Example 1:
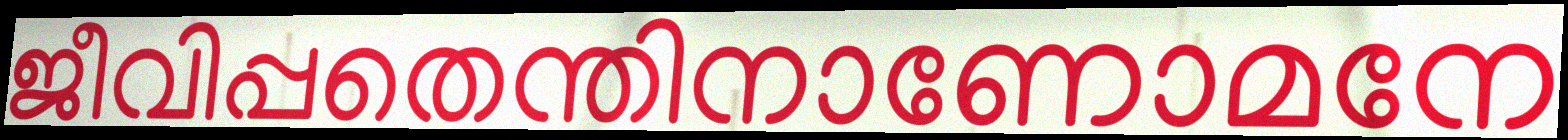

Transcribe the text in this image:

ജീവിപ്പതെന്തിനാണോമനേ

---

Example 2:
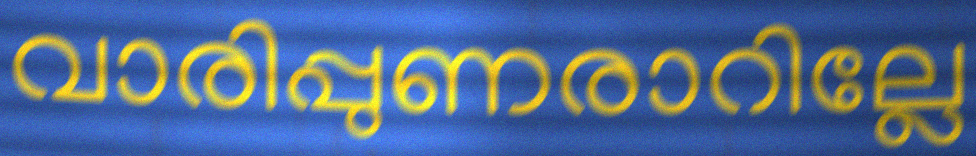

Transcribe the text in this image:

വാരിപ്പുണരാറില്ലേ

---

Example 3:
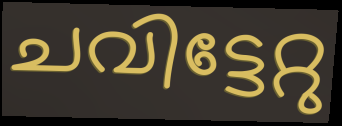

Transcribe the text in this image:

ചവിട്ടേറ്റു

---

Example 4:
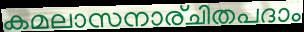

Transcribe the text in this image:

കമലാസനാര്ചിതപദാം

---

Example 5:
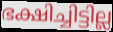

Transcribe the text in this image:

ഭക്ഷിച്ചിട്ടില്ല